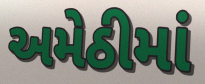
અમેઠીમાં